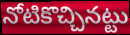
నోటికొచ్చినట్టు